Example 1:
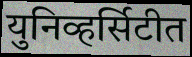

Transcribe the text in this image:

युनिव्हर्सिटीत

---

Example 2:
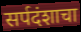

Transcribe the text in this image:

सर्पदंशाचा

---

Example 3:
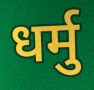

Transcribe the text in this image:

धर्मु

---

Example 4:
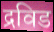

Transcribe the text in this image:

द्रविड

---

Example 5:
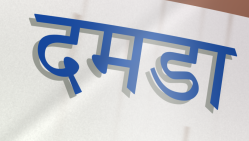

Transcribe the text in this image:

दमडा